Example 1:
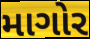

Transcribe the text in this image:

માગોર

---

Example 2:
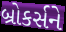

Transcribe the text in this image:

બ્રોકર્સને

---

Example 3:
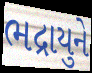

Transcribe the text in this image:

ભદ્રાયુને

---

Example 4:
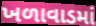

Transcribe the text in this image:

ખળાવાડમાં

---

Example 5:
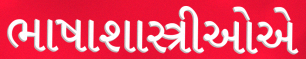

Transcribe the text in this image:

ભાષાશાસ્ત્રીઓએ